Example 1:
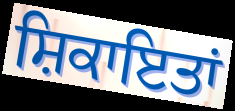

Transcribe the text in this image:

ਸ਼ਿਕਾਇਤਾਂ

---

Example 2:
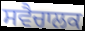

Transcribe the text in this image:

ਸਵੈਚਾਲਕ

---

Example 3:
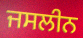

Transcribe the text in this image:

ਜਸਲੀਨ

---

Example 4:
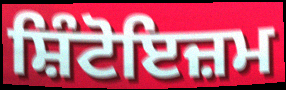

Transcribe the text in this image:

ਸ਼ਿੰਟੋਇਜ਼ਮ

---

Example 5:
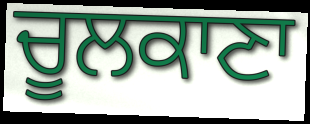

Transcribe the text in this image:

ਚੂਲਕਾਣਾ